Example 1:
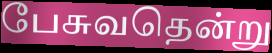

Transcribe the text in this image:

பேசுவதென்று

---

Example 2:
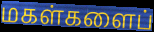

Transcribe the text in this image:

மகள்களைப்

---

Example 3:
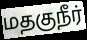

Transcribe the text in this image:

மதகுநீர்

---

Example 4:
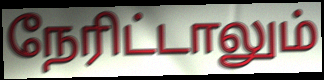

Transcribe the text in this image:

நேரிட்டாலும்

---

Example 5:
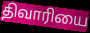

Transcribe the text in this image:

திவாரியை